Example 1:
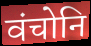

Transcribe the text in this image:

वंचोनि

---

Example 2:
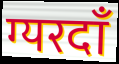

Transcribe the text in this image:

ग्यरदाँ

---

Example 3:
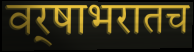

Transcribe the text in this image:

वर्षाभरातच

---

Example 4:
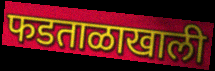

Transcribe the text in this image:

फडताळाखाली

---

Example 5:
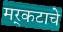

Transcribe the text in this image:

मर्कटाचे